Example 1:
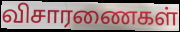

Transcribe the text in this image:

விசாரணைகள்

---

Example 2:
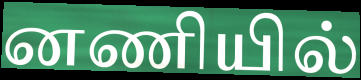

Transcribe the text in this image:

னணியில்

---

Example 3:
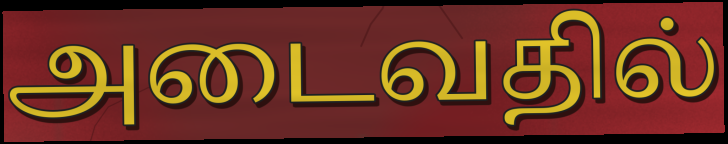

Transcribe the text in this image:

அடைவதில்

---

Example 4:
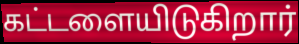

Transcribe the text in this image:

கட்டளையிடுகிறார்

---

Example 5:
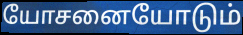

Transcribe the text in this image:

யோசனையோடும்